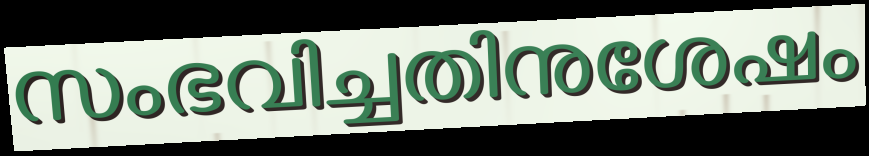
സംഭവിച്ചതിനുശേഷം